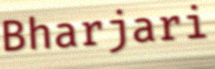
Bharjari